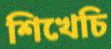
শিখেচি